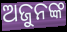
ଅଜୁନଙ୍କ